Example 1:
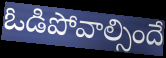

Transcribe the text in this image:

ఓడిపోవాల్సిందే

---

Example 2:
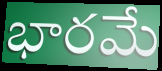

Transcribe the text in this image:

భారమే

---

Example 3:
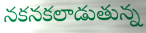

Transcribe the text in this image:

నకనకలాడుతున్న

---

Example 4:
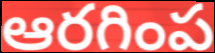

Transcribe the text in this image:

ఆరగింప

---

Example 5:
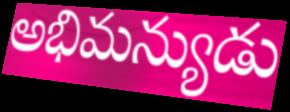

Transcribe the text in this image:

అభిమన్యుడు